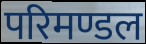
परिमण्डल